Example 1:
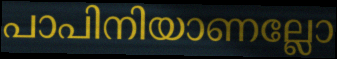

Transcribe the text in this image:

പാപിനിയാണല്ലോ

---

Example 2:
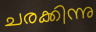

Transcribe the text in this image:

ചരക്കിന്നു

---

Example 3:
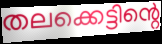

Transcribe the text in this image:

തലക്കെട്ടിന്റെ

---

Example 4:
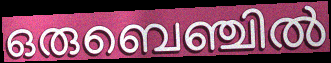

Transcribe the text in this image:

ഒരുബെഞ്ചിൽ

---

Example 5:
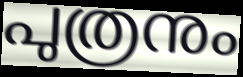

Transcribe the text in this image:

പുത്രനും